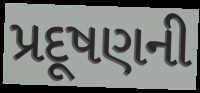
પ્રદૂષણની